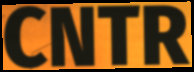
CNTR